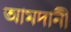
আমদানী